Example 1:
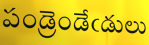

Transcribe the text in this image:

పండ్రెండేఁడులు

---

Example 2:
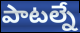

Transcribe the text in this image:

పాటల్నే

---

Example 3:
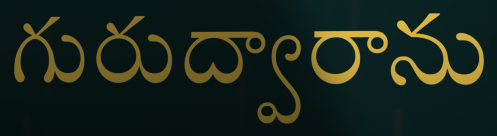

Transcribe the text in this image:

గురుద్వారాను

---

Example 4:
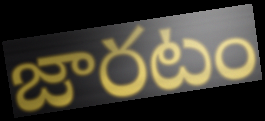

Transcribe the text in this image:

జారటం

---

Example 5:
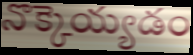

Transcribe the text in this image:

నొక్కెయ్యడం